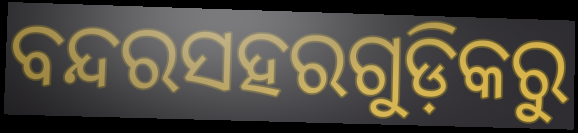
ବନ୍ଦରସହରଗୁଡ଼ିକରୁ